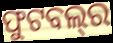
ଫୁଟବଲ୍‍ର